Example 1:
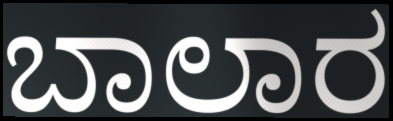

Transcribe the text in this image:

ಬಾಲಾರ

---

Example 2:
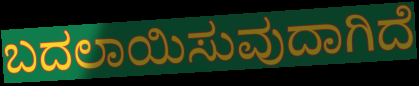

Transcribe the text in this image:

ಬದಲಾಯಿಸುವುದಾಗಿದೆ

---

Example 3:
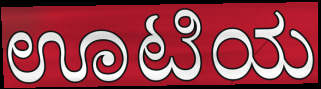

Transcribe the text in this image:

ಊಟಿಯ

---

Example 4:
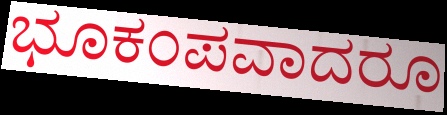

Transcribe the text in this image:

ಭೂಕಂಪವಾದರೂ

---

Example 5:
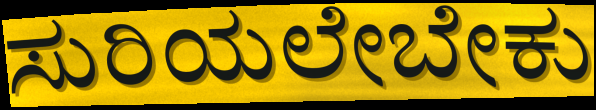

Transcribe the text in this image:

ಸುರಿಯಲೇಬೇಕು